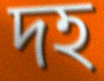
দহ